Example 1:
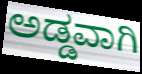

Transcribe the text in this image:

ಅಡ್ಡವಾಗಿ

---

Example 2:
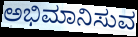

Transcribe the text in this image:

ಅಭಿಮಾನಿಸುವ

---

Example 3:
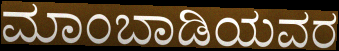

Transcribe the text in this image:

ಮಾಂಬಾಡಿಯವರ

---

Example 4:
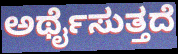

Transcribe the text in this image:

ಅರ್ಥೈಸುತ್ತದೆ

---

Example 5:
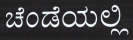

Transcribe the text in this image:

ಚೆಂಡೆಯಲ್ಲಿ